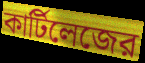
কার্টিলেজের